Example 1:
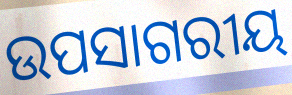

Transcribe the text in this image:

ଉପସାଗରୀୟ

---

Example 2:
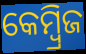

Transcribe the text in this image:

କେମ୍ବ୍ରିଜ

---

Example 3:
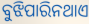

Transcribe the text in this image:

ବୁଝିପାରିନଥାଏ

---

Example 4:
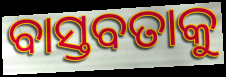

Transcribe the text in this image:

ବାସ୍ତବତାକୁ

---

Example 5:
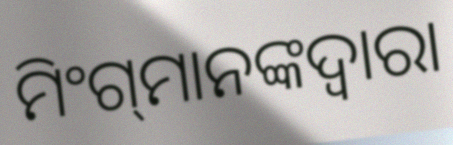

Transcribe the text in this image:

ମିଂଗ୍‍ମାନଙ୍କଦ୍ୱାରା